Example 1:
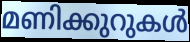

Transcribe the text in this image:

മണിക്കുറുകൾ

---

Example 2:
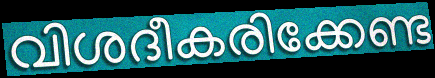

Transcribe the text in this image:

വിശദീകരിക്കേണ്ട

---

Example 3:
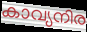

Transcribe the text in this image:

കാവ്യനിര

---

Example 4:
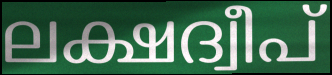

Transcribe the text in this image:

ലക്ഷദ്വീപ്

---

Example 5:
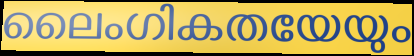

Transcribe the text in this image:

ലൈംഗികതയേയും